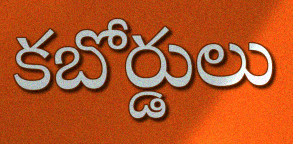
కబోర్డులు